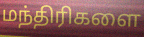
மந்திரிகளை